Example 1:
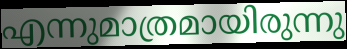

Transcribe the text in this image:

എന്നുമാത്രമായിരുന്നു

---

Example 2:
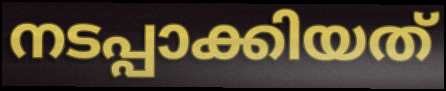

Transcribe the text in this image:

നടപ്പാക്കിയത്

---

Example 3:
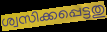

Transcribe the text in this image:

ശ്വസിക്കപ്പെട്ടതു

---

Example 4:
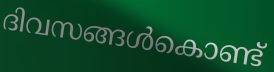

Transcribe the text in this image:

ദിവസങ്ങൾകൊണ്ട്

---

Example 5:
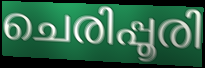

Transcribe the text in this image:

ചെരിപ്പൂരി